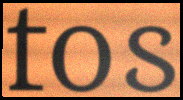
tos